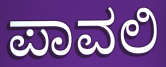
ಪಾವಲಿ